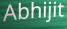
Abhijit